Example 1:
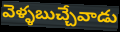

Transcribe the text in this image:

వెళ్ళబుచ్చేవాడు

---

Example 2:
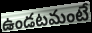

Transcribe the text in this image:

ఉండటమంటే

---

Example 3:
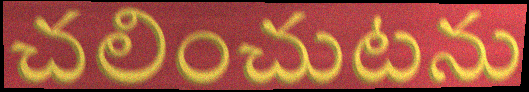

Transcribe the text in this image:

చలించుటను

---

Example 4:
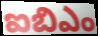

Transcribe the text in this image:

ఐబిఎం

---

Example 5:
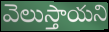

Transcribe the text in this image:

వెలుస్తాయని